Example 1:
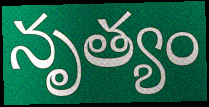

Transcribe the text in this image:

నృత్యం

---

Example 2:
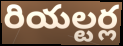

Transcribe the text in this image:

రియల్టర్ల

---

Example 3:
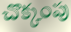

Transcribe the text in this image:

చొక్కంపు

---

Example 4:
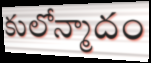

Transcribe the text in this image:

కులోన్మాదం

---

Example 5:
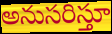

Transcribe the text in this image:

అనుసరిస్తూ